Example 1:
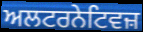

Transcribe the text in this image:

ਅਲਟਰਨੇਟਿਵਜ਼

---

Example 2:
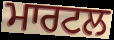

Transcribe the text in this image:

ਮਾਰਟਲ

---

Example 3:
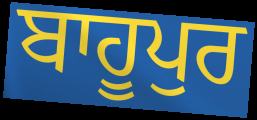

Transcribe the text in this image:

ਬਾਹੂਪੁਰ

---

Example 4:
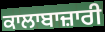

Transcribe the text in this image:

ਕਾਲਾਬਾਜ਼ਾਰੀ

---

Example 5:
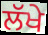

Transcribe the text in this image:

ਲੱਖੇ